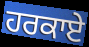
ਹਰਕਾਏ